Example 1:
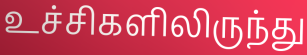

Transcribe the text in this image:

உச்சிகளிலிருந்து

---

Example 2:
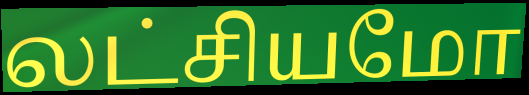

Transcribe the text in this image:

லட்சியமோ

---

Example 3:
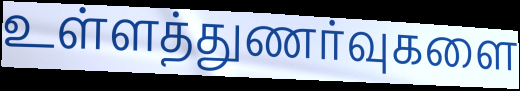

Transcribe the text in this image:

உள்ளத்துணர்வுகளை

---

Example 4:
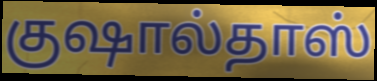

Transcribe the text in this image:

குஷால்தாஸ்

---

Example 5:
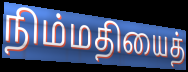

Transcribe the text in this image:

நிம்மதியைத்